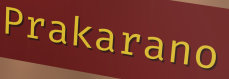
Prakarano